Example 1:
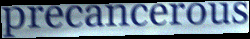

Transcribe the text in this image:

precancerous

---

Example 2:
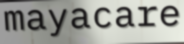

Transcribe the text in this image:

mayacare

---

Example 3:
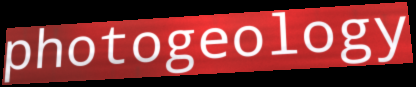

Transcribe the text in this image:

photogeology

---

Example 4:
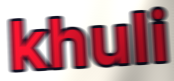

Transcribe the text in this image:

khuli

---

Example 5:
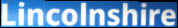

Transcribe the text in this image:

Lincolnshire